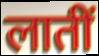
लातीं